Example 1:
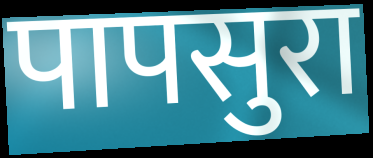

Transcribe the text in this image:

पापसुरा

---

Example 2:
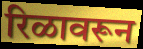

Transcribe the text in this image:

रिळावरून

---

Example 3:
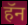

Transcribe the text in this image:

हॅन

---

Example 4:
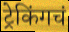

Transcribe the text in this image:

ट्रेकिंगचं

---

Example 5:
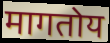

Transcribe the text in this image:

मागतोय